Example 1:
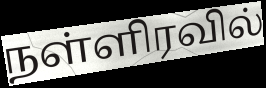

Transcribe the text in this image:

நள்ளிரவில்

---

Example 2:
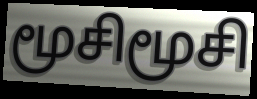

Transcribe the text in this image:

மூசிமூசி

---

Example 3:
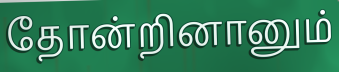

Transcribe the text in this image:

தோன்றினானும்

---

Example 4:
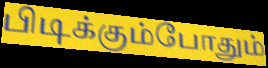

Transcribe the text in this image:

பிடிக்கும்போதும்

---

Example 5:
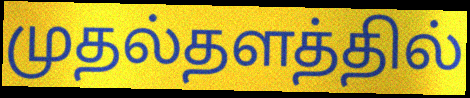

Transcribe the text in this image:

முதல்தளத்தில்